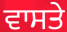
ਵਾਸਤੇ